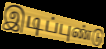
இடிப்புண்டு